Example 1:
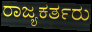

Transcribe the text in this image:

ರಾಜ್ಯಕರ್ತರು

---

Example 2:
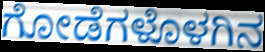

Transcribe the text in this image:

ಗೋಡೆಗಳೊಳಗಿನ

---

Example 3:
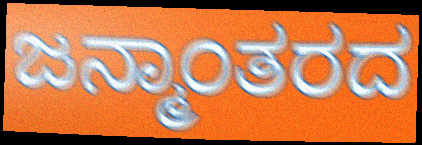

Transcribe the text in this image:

ಜನ್ಮಾಂತರದ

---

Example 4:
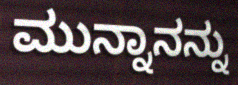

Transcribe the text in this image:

ಮುನ್ನಾನನ್ನು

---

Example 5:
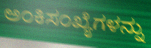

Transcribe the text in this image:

ಅಂಕಿಸಂಖ್ಯೆಗಳನ್ನು